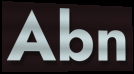
Abn